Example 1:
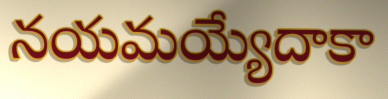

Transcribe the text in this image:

నయమయ్యేదాకా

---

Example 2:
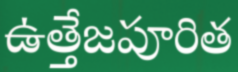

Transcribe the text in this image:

ఉత్తేజపూరిత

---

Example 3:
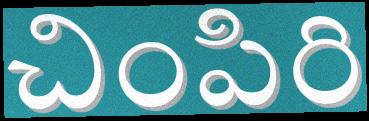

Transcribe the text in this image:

చింపిరి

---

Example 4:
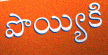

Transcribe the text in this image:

పొయ్యికి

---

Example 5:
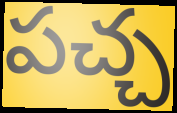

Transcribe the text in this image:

పచ్చ